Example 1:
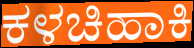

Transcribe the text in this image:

ಕಳಚಿಹಾಕಿ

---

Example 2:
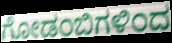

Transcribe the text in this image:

ಗೋಡಂಬಿಗಳಿಂದ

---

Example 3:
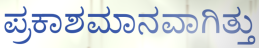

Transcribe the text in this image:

ಪ್ರಕಾಶಮಾನವಾಗಿತ್ತು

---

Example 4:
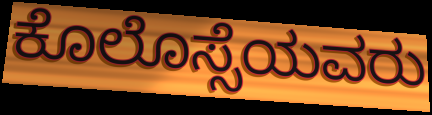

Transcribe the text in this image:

ಕೊಲೊಸ್ಸೆಯವರು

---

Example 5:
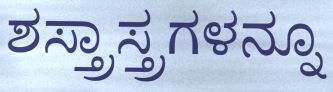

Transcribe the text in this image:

ಶಸ್ತ್ರಾಸ್ತ್ರಗಳನ್ನೂ